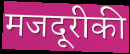
मजदूरीकी